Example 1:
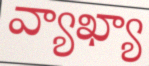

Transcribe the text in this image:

వ్యాఖ్యా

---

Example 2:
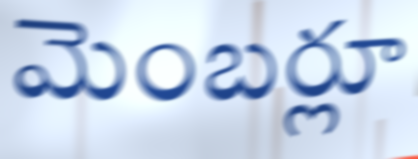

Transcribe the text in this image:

మెంబర్లూ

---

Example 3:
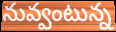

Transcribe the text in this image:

నువ్వంటున్న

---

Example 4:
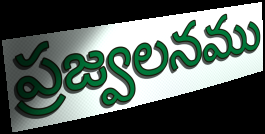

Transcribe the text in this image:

ప్రజ్వలనము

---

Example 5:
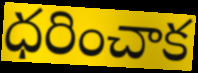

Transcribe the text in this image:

ధరించాక